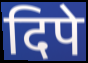
दिपे